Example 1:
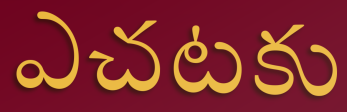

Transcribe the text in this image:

ఎచటకు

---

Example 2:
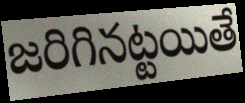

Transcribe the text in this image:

జరిగినట్టయితే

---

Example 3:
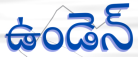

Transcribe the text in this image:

ఉండెన్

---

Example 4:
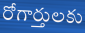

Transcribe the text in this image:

రోగార్తులకు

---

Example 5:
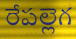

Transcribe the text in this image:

రేపల్లెగ